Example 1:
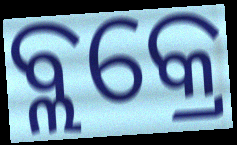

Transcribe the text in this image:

ବ୍ଲକ୍ରେ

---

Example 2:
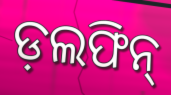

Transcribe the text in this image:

ଡ଼ଲଫିନ୍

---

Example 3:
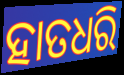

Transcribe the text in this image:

ହାତଧରି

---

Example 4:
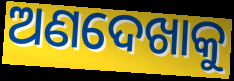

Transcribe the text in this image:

ଅଣଦେଖାକୁ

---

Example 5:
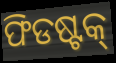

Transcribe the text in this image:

ଫିଡଷ୍ଟକ୍